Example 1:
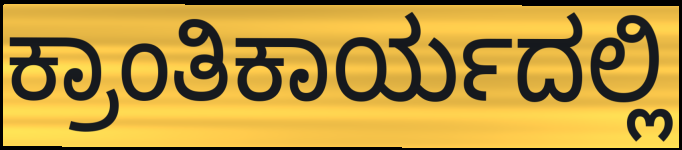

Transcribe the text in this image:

ಕ್ರಾಂತಿಕಾರ್ಯದಲ್ಲಿ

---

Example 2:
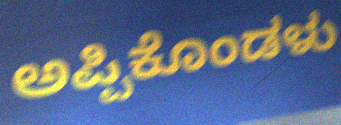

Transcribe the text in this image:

ಅಪ್ಪಿಕೊಂಡಳು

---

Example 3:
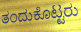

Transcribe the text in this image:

ತಂದುಕೊಟ್ಟರು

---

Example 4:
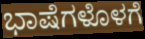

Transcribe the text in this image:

ಭಾಷೆಗಳೊಳಗೆ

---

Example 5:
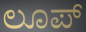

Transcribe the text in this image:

ಲೂಪ್